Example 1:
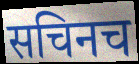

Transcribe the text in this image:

सचिनच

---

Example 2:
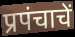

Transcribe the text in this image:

प्रपंचाचें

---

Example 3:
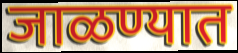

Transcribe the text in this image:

जाळण्यात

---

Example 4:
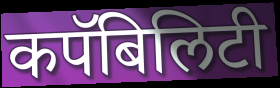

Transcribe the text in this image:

कपॅबिलिटी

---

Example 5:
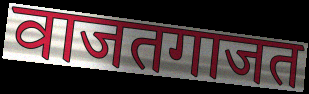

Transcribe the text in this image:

वाजतगाजत